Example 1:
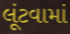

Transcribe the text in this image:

લૂંટવામાં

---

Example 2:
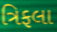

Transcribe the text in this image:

ત્રિફલા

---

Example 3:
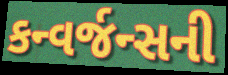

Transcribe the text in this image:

કન્વર્જન્સની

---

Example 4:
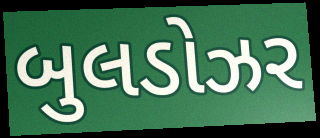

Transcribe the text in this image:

બુલડોઝર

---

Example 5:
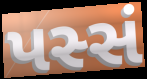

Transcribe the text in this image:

પસ્સં